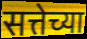
सत्तेच्या